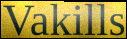
Vakills